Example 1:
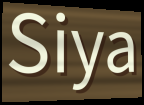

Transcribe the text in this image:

Siya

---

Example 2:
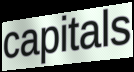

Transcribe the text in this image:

capitals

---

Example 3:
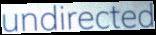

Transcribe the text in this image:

undirected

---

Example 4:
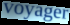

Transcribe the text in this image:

voyager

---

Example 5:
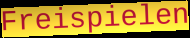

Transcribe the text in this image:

Freispielen